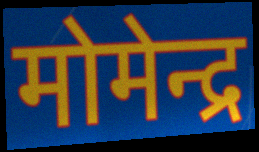
मोमेन्द्र